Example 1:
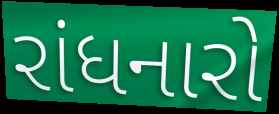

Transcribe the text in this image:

રાંધનારો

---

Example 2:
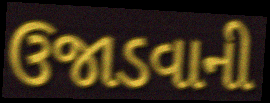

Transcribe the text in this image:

ઉજાડવાની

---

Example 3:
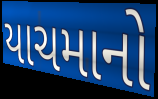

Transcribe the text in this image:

યાચમાનો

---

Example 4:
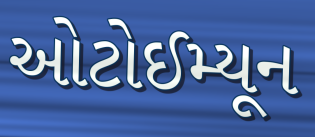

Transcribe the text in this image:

ઓટોઈમ્યૂન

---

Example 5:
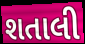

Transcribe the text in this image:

શતાલી